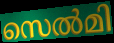
സെൽമി